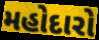
મહોદારો